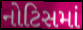
નોટિસમાં